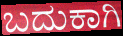
ಬದುಕಾಗಿ